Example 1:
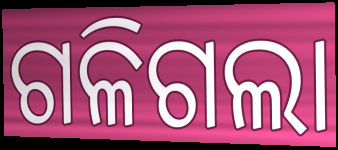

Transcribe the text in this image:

ଗଳିଗଲା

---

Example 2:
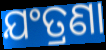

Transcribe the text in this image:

ଯଂତ୍ରଣା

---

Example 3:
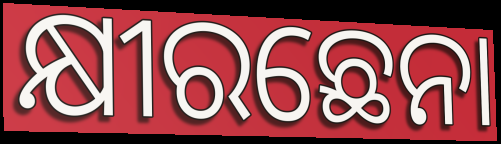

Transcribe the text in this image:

କ୍ଷୀରଛେନା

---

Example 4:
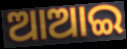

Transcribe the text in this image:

ଆଆଇ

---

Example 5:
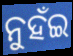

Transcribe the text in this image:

ନୁହଁଇ